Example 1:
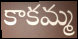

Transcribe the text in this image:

కాకమ్మ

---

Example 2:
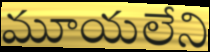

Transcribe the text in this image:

మూయలేని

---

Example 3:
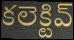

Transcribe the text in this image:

కలెక్టివ్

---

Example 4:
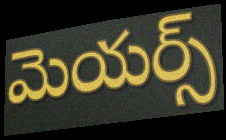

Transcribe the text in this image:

మెయర్స్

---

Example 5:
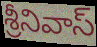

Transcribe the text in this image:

శ్రీనివాస్